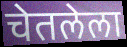
चेतलेला